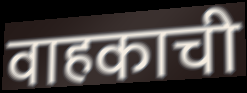
वाहकाची